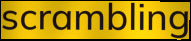
scrambling